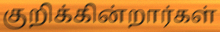
குறிக்கின்றார்கள்